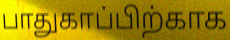
பாதுகாப்பிற்காக